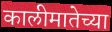
कालीमातेच्या